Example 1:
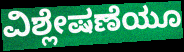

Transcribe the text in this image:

ವಿಶ್ಲೇಷಣೆಯೂ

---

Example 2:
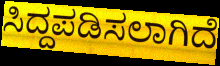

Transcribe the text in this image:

ಸಿದ್ದಪಡಿಸಲಾಗಿದೆ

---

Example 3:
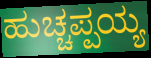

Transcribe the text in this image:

ಹುಚ್ಚಪ್ಪಯ್ಯ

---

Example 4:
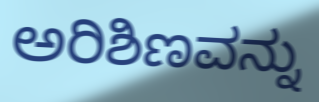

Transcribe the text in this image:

ಅರಿಶಿಣವನ್ನು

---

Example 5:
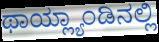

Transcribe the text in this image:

ಥಾಯ್ಲ್ಯಾಂಡಿನಲ್ಲಿ